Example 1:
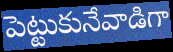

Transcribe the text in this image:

పెట్టుకునేవాడిగా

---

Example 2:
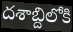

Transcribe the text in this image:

దశాబ్దిలోకి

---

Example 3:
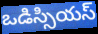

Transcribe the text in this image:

ఒడిస్సియస్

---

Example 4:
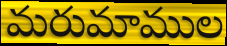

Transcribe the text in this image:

మరుమాముల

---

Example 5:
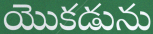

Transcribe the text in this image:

యొకడును